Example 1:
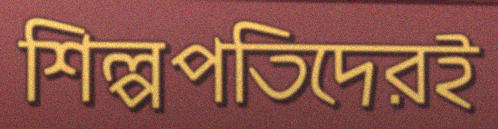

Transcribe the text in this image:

শিল্পপতিদেরই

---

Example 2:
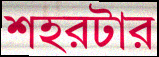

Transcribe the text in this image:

শহরটার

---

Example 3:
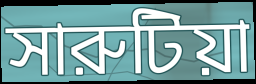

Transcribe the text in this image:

সারুটিয়া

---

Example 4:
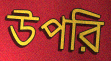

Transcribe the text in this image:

উপরি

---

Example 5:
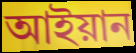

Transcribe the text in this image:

আইয়ান